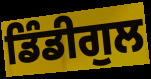
ਡਿੰਡੀਗੁਲ